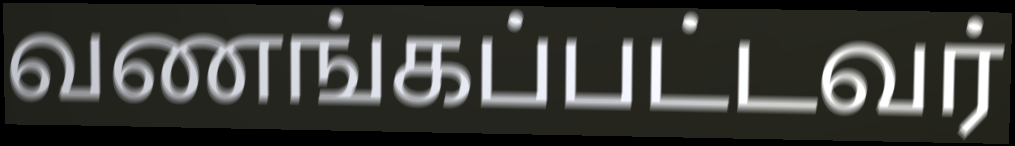
வணங்கப்பட்டவர்